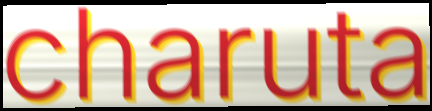
charuta